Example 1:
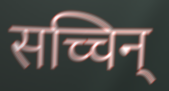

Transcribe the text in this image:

सच्चिन्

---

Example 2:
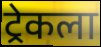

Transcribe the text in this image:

ट्रेकला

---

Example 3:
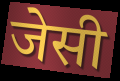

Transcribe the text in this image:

जेसी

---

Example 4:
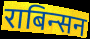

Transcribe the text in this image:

राबिन्सन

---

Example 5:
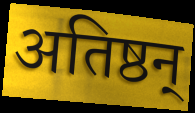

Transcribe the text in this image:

अतिष्ठन्